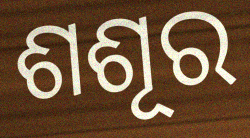
ଶଶୂର